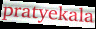
pratyekala